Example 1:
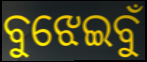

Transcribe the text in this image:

ବୁଝେଇବୁଁ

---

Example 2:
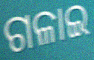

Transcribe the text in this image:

ଗଳାଇ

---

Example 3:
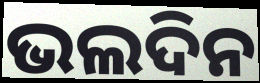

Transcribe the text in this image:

ଭଲଦିନ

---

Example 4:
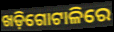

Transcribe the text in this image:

ଖଡ଼ିଗୋଟାଳିରେ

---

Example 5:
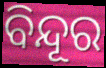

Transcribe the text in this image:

ବିନ୍ଦୂର